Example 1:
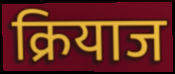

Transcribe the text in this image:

क्रियाज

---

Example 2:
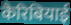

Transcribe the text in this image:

कैरिबियाई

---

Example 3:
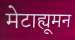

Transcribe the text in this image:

मेटाह्यूमन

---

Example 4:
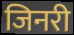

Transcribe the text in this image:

जिनरी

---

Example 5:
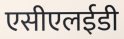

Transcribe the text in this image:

एसीएलईडी